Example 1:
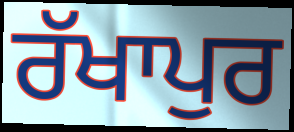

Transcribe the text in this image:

ਰੱਖਾਪੁਰ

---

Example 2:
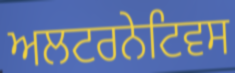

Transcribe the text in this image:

ਅਲਟਰਨੇਟਿਵਸ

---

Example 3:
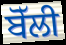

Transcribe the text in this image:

ਬੋੱਲੀ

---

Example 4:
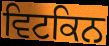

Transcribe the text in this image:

ਵਿਟਕਿਨ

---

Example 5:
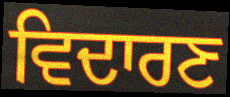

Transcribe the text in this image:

ਵਿਦਾਰਣ